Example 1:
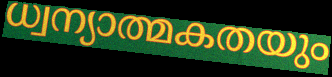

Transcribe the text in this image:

ധ്വന്യാത്മകതയും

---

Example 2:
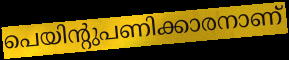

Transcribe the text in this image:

പെയിന്റുപണിക്കാരനാണ്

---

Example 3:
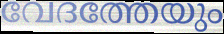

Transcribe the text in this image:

വേദത്തേയും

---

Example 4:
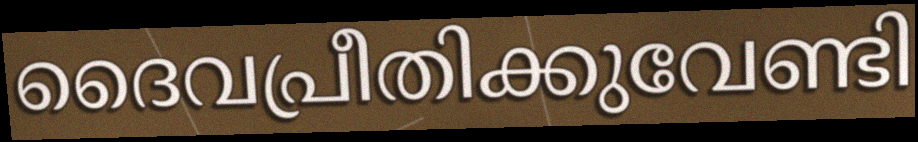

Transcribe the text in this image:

ദൈവപ്രീതിക്കുവേണ്ടി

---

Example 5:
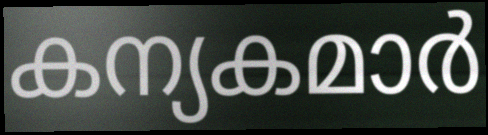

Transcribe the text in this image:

കന്യകമാർ